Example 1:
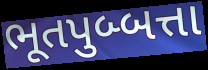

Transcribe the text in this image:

ભૂતપુબ્બત્તા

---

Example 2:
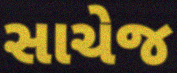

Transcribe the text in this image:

સાચેજ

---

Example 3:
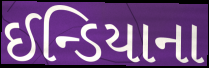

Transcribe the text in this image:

ઈન્ડિયાના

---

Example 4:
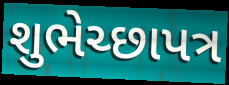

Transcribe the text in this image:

શુભેચ્છાપત્ર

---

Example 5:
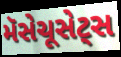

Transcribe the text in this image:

મૅસેચૂસેટ્સ